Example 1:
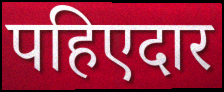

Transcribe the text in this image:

पहिएदार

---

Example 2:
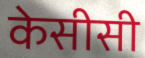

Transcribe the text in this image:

केसीसी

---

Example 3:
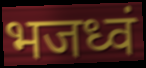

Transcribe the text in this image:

भजध्वं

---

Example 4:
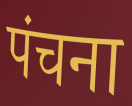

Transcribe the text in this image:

पंचना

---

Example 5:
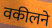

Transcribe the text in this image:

वकीलने